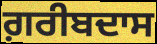
ਗ਼ਰੀਬਦਾਸ